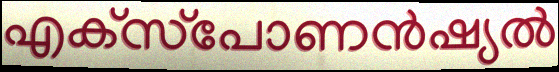
എക്‌സ്‌പോണൻഷ്യൽ